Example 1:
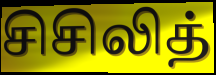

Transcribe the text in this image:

சிசிலித்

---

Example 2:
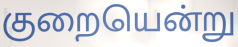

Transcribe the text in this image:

குறையென்று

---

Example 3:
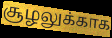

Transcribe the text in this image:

சூழலுக்காக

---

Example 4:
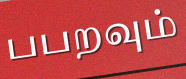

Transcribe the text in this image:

பபறவும்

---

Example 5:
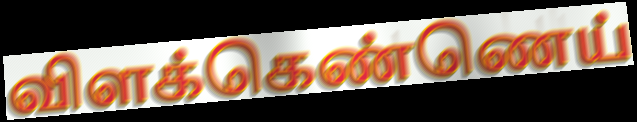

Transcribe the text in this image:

விளக்கெண்ணெய்